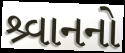
શ્ર્વાનનો